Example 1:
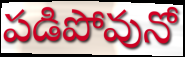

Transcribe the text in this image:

పడిపోవునో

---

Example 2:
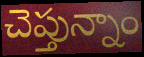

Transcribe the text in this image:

చెప్తున్నాం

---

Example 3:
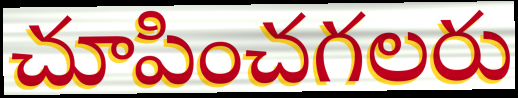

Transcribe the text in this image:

చూపించగలరు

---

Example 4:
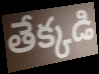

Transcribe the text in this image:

తేక్కడి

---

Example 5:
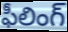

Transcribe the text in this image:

ఫీలింగ్